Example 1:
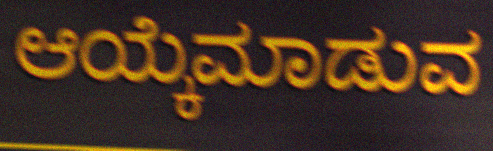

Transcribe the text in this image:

ಆಯ್ಕೆಮಾಡುವ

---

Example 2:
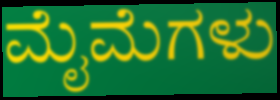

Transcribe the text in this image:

ಮೈಮೆಗಳು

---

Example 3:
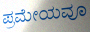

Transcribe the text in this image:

ಪ್ರಮೇಯವೂ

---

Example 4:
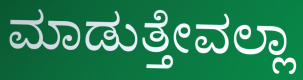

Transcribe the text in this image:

ಮಾಡುತ್ತೇವಲ್ಲಾ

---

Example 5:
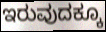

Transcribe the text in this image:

ಇರುವುದಕ್ಕೂ